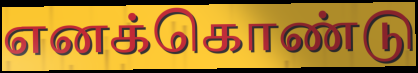
எனக்கொண்டு